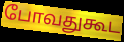
போவதுகூட